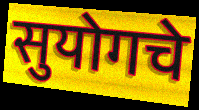
सुयोगचे